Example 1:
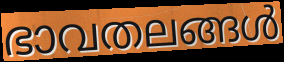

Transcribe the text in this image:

ഭാവതലങ്ങൾ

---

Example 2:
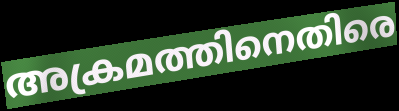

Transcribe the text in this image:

അക്രമത്തിനെതിരെ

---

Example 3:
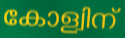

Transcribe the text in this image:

കോള്വിന്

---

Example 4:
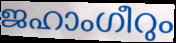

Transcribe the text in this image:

ജഹാംഗീറും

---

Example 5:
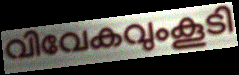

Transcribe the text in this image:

വിവേകവുംകൂടി